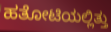
ಹತೋಟಿಯಲ್ಲಿತ್ತು